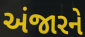
અંજારને